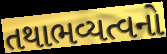
તથાભવ્યત્વનો